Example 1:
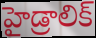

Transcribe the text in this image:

హైడ్రాలిక్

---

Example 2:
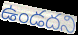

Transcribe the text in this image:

ఉండదని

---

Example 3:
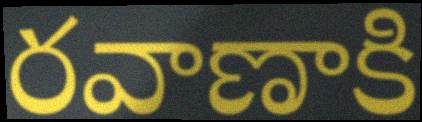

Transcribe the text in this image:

రవాణాకి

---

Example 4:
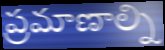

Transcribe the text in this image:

ప్రమాణాల్ని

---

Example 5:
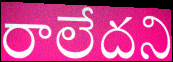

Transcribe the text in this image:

రాలేదని